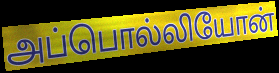
அப்பொல்லியோன்